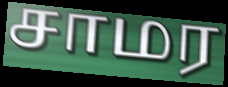
சாமர